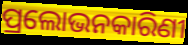
ପ୍ରଲୋଭନକାରିଣୀ